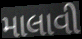
માલાવી